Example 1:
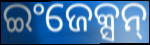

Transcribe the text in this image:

ଇଂଜେକ୍ସନ୍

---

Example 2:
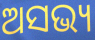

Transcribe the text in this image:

ଅସଭ୍ୟ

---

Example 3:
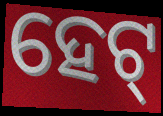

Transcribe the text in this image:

ହେଟ୍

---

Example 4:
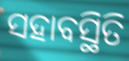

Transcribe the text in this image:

ସହାବସ୍ଥିତି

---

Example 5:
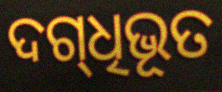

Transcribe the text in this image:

ଦଗ୍‌ଧିଭୂତ